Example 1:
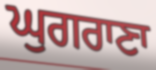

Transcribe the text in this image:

ਘੁਗਰਾਣਾ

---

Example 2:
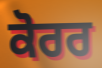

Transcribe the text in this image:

ਕੋਰਰ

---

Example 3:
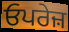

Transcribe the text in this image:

ਓਪਰੇਜ਼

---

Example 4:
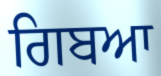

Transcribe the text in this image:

ਗਿਬਆ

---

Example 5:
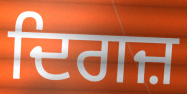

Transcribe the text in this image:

ਦਿਗਜ਼